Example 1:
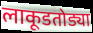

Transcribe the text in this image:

लाकूडतोड्या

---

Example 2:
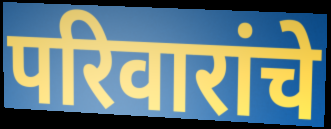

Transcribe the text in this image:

परिवारांचे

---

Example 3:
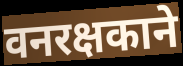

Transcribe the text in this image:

वनरक्षकाने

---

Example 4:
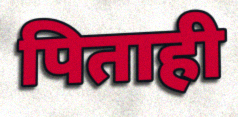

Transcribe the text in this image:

पिताही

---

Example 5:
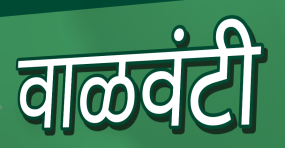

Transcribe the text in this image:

वाळवंटी